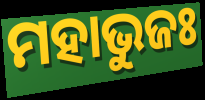
ମହାଭୁଜଃ